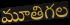
మూతిగల